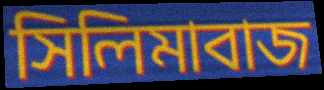
সিলিমাবাজ